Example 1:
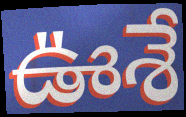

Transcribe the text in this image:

ఊశే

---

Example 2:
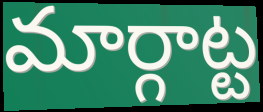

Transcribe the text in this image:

మార్గాట్ట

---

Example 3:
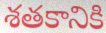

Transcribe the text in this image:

శతకానికి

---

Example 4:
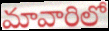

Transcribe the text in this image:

మావారిలో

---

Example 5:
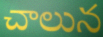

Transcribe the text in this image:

చాలున